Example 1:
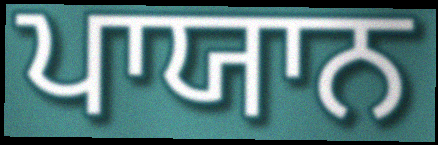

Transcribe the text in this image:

ਪਾਯਾਨ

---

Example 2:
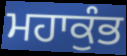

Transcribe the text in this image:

ਮਹਾਕੁੰਭ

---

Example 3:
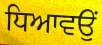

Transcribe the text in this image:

ਧਿਆਵਉਂ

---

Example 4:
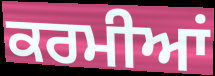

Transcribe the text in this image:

ਕਰਮੀਆਂ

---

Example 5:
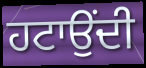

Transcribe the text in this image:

ਹਟਾਉਂਦੀ